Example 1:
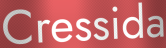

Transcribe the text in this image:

Cressida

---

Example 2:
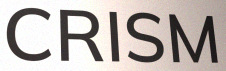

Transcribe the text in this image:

CRISM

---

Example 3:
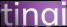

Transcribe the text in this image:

tinai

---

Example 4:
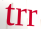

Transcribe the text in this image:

trr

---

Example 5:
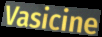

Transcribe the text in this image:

Vasicine